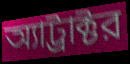
অ্যাট্রাক্টর